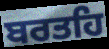
ਬਰਤਹਿ